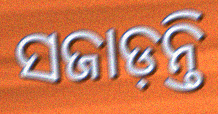
ସଜାଡ଼ନ୍ତି